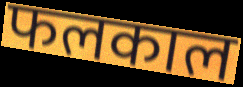
फलकाल